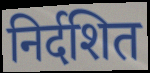
निर्दशित